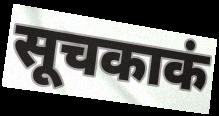
सूचकाकं